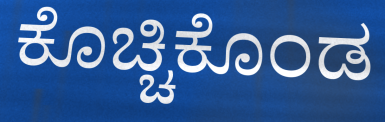
ಕೊಚ್ಚಿಕೊಂಡ